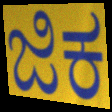
ಜಿಕ